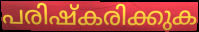
പരിഷ്കരിക്കുക